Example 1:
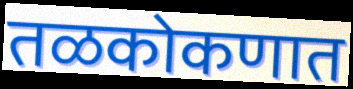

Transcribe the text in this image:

तळकोकणात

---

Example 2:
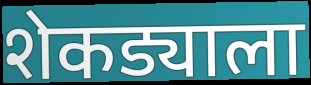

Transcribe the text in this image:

शेकड्याला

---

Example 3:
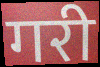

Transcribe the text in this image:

गरी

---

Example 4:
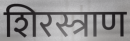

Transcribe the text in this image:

शिरस्त्राण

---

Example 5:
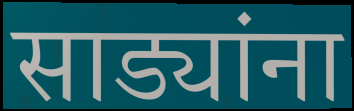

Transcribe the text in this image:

साड्यांना